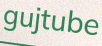
gujtube